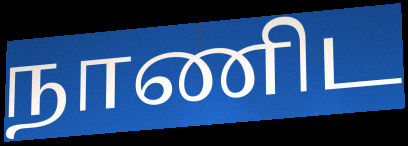
நாணிட